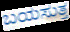
ಬಯಸುತ್ತ